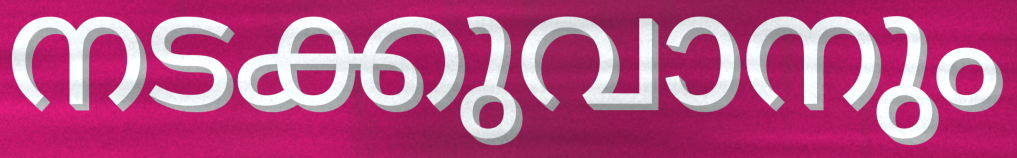
നടക്കുവാനും